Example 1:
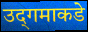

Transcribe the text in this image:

उद्‌गमाकडे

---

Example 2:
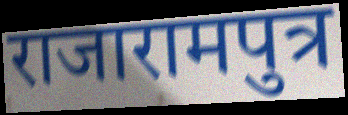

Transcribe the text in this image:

राजारामपुत्र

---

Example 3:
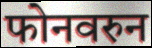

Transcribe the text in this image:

फोनवरुन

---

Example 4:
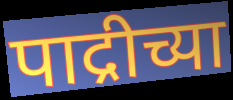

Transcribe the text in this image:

पाद्रीच्या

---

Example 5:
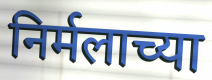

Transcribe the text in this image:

निर्मलाच्या